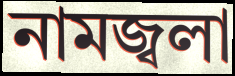
নামজ্বলা